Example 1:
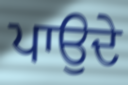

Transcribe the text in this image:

ਪਾਉਦੇ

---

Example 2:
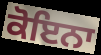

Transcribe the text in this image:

ਕੋਇਨਾ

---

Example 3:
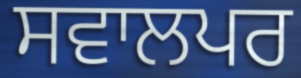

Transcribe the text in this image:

ਸਵਾਲਪਰ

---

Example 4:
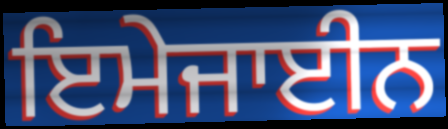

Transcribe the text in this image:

ਇਮੇਜਾਈਨ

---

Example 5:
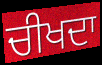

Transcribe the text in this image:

ਚੀਖਦਾ